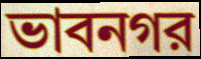
ভাবনগর